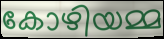
കോഴിയമ്മ